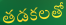
తడకలతో